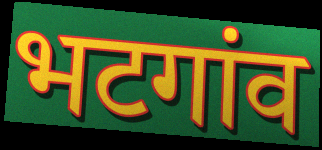
भटगांव